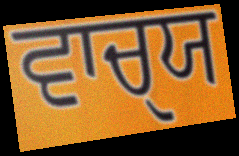
ਵਾਚੑਯ